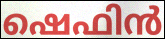
ഷെഫിൻ